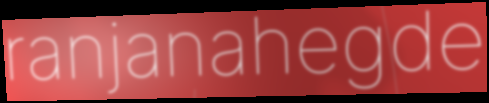
ranjanahegde